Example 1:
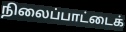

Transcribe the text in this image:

நிலைப்பாட்டைக்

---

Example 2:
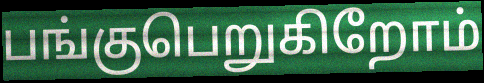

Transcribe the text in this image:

பங்குபெறுகிறோம்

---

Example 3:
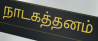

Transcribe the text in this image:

நாடகத்தனம்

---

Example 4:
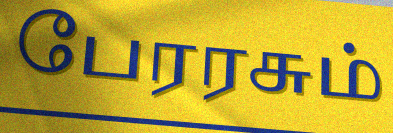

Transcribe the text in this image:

பேரரசும்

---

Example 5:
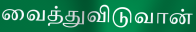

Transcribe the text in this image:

வைத்துவிடுவான்